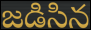
జడిసిన